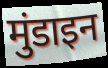
मुंडाइन